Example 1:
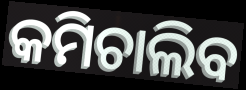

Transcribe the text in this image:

କମିଚାଲିବ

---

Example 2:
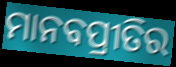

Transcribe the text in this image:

ମାନବପ୍ରୀତିର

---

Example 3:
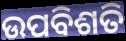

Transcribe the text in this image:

ଉପବିଶତି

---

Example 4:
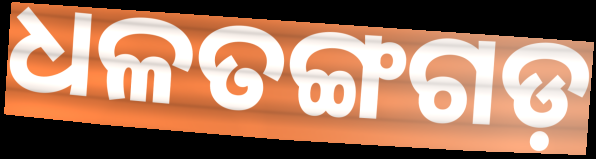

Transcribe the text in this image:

ଧଳତଙ୍ଗଗଡ଼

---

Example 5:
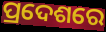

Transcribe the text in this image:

ପ୍ରଦେଶରେ